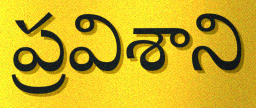
ప్రవిశాని